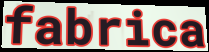
fabrica